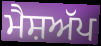
ਮੈਸ਼ਅੱਪ